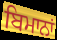
ਬਿਮਾਨਾਂ